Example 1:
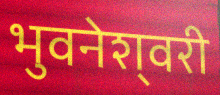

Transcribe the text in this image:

भुवनेश्वरी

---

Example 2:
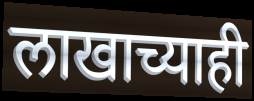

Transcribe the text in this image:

लाखाच्याही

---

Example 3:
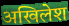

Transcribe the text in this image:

अखिलेश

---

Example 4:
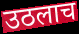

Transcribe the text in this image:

उठलाच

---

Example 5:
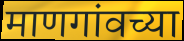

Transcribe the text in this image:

माणगांवच्या